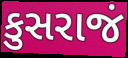
કુસરાજં